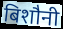
बिशौनी